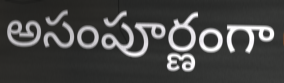
అసంపూర్ణంగా